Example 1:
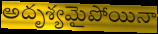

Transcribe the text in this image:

అదృశ్యమైపోయినా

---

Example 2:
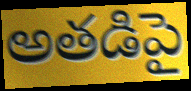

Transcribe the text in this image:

అతడిపై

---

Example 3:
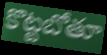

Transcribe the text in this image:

కొట్టబోతూ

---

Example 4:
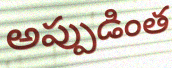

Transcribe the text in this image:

అప్పుడింత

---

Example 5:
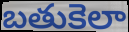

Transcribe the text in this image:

బతుకెలా